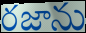
రజాను